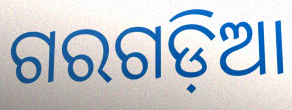
ଗରଗଡ଼ିଆ